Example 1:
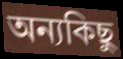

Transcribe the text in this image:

অন্যকিছু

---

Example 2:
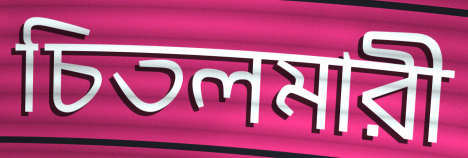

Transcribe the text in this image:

চিতলমারী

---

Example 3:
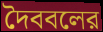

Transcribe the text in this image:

দৈববলের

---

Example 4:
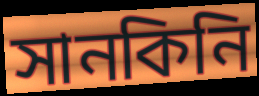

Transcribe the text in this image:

সানকিনি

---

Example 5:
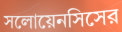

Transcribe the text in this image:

সলোয়েনসিসের